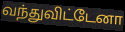
வந்துவிட்டேனா